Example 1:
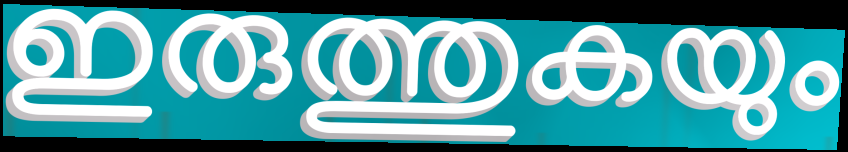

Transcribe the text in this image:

ഇരുത്തുകയും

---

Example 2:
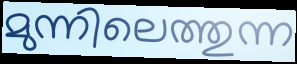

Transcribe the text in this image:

മുന്നിലെത്തുന്ന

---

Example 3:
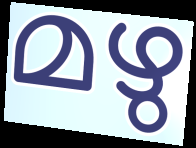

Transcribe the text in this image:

മഴു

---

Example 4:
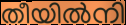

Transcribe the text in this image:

തീയിൽനി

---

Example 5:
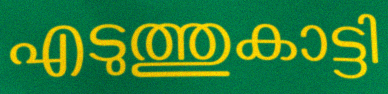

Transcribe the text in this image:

എടുത്തുകാട്ടി